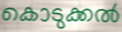
കൊടുക്കൽ